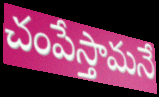
చంపేస్తామనే